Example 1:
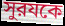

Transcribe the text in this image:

সুরযকে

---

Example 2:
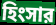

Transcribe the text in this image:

হিংসার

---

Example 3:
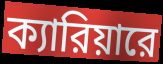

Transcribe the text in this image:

ক্যারিয়ারে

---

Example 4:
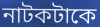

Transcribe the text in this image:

নাটকটাকে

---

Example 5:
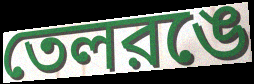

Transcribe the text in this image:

তেলরঙে